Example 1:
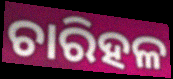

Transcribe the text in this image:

ଚାରିହଳ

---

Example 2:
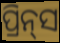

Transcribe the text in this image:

ପ୍ରିନ୍‍ସ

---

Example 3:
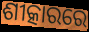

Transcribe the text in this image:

ଶୀତ୍କାରରେ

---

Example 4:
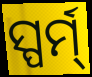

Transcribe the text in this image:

ସ୍ପର୍ମ୍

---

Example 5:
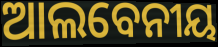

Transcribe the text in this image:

ଆଲବେନୀୟ